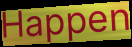
Happen